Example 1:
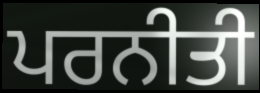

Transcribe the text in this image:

ਪਰਨੀਤੀ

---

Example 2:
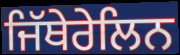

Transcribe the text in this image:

ਜਿੱਥੇਰੇਲਿਨ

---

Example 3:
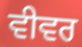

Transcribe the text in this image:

ਵੀਵਰ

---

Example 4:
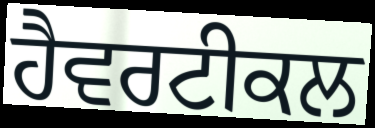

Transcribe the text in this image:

ਹੈਵਰਟੀਕਲ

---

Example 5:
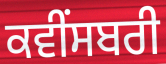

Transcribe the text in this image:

ਕਵੀਂਸਬਰੀ